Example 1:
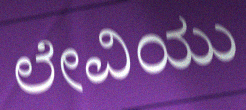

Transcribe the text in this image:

ಲೇವಿಯು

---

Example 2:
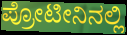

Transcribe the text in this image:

ಪ್ರೋಟೀನಿನಲ್ಲಿ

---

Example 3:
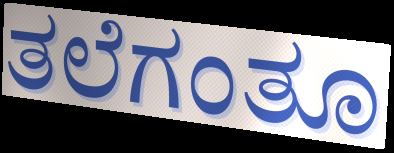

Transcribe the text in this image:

ತಲೆಗಂತೂ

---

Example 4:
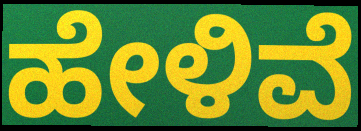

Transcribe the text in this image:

ಹೇಳಿವೆ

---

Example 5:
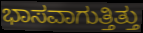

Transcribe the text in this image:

ಭಾಸವಾಗುತ್ತಿತ್ತು